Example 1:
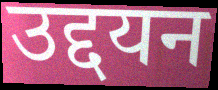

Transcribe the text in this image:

उद्दयन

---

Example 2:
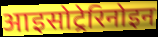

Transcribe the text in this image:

आइसोट्रेरिनोइन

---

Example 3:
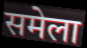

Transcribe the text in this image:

समेला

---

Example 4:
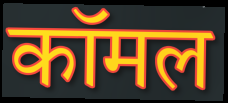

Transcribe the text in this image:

कॉमल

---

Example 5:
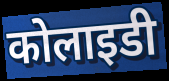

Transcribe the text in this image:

कोलाइडी